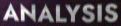
ANALYSIS